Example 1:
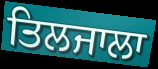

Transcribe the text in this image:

ਤਿਲਜਾਲਾ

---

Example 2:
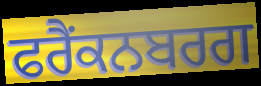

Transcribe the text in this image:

ਫਰੈਂਕਨਬਰਗ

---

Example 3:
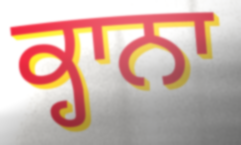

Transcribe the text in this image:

ਕ੍ਹਾਨਾ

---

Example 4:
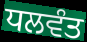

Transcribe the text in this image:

ਧਲਵੰਤ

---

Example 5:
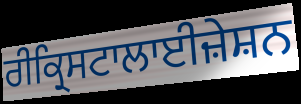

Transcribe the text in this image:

ਰੀਕ੍ਰਿਸਟਾਲਾਈਜ਼ੇਸ਼ਨ